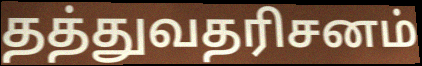
தத்துவதரிசனம்